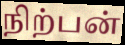
நிற்பன்